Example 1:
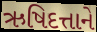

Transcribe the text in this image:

ઋષિદત્તાને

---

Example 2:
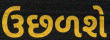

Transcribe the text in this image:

ઉછળશે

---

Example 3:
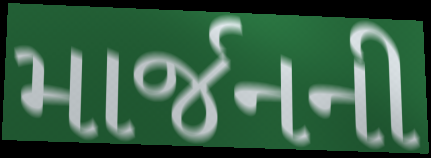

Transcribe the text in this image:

માર્જનની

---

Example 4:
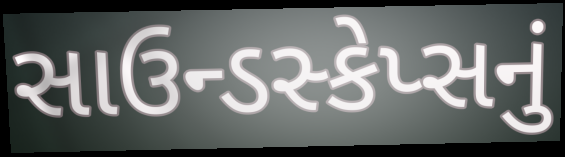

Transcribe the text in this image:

સાઉન્ડસ્કેપ્સનું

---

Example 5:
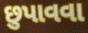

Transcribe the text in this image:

છુપાવવા